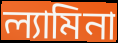
ল্যামিনা